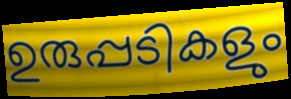
ഉരുപ്പടികളും